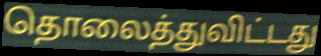
தொலைத்துவிட்டது